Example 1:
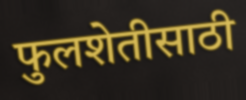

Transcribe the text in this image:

फुलशेतीसाठी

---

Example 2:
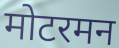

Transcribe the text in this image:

मोटरमन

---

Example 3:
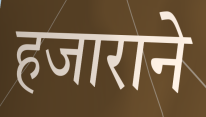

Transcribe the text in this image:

हजाराने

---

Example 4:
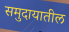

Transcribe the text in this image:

समुदायातील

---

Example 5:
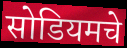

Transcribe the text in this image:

सोडियमचे